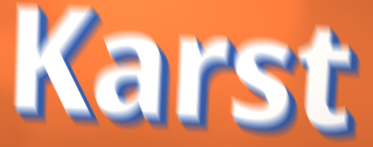
Karst